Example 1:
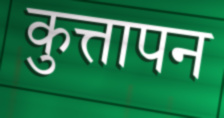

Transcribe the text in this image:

कुत्तापन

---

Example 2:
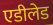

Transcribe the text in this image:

एडीलेड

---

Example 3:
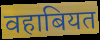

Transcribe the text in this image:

वहाबियत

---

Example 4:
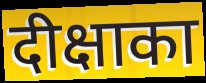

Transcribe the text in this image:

दीक्षाका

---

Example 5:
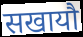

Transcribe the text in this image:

सखायौ